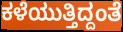
ಕಳೆಯುತ್ತಿದ್ದಂತೆ